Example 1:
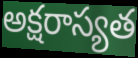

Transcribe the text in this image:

అక్షరాస్యత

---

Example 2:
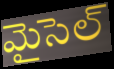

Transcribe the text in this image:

మైసెల్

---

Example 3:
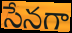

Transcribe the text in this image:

సేనగా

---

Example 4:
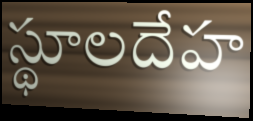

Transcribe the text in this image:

స్థూలదేహ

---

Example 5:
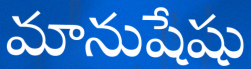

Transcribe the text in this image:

మానుషేషు